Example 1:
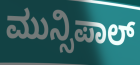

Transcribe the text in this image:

ಮುನ್ಸಿಪಾಲ್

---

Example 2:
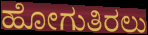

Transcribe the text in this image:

ಹೋಗುತಿರಲು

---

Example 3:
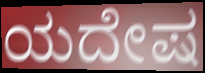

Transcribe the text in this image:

ಯದೇಷ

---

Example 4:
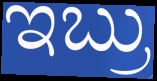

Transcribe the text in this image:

ಇಬ್ರು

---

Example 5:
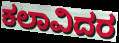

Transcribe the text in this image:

ಕಲಾವಿದರ